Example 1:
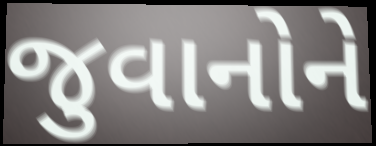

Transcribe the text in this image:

જુવાનોને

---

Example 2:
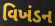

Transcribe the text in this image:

વિખંડન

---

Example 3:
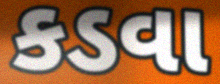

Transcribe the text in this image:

કડવા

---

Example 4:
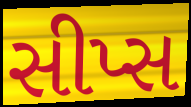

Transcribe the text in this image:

સીપ્સ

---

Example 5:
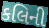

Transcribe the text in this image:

કલિની